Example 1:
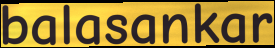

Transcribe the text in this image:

balasankar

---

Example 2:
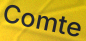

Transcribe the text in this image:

Comte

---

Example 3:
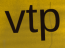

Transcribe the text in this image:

vtp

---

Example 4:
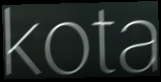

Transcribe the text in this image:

kota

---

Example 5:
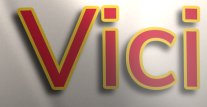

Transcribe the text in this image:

Vici